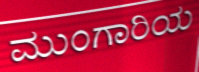
ಮುಂಗಾರಿಯ